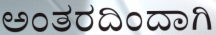
ಅಂತರದಿಂದಾಗಿ